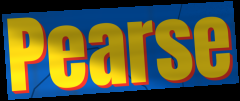
Pearse